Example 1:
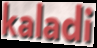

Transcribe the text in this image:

kaladi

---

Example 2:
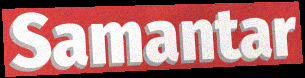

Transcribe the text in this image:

Samantar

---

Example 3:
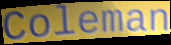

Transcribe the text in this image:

Coleman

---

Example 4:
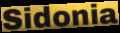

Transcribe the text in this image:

Sidonia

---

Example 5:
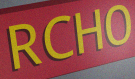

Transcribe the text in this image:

RCHO